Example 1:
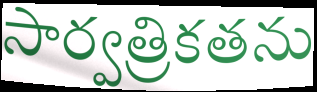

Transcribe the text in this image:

సార్వత్రికతను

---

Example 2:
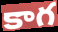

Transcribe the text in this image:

కాగ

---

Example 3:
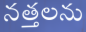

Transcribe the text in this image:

నత్తలను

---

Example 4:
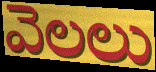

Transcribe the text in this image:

వెలలు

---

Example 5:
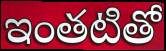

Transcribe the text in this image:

ఇంతటితో